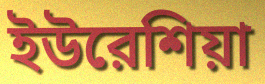
ইউরেশিয়া